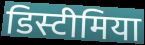
डिस्टीमिया